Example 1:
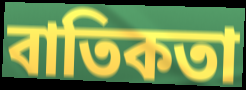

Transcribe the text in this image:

বাতিকতা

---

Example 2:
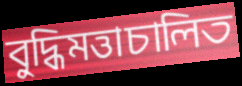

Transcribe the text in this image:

বুদ্ধিমত্তাচালিত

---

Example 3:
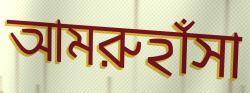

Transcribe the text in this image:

আমরুহাঁসা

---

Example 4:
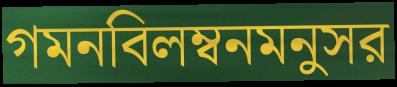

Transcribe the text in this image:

গমনবিলম্বনমনুসর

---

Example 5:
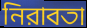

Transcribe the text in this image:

নিরাবতা